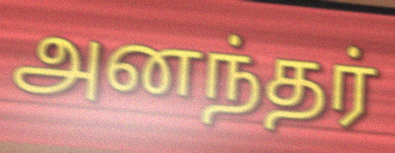
அனந்தர்